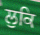
ਲੁਕਿ